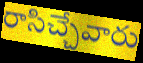
రాసిచ్చేవారు